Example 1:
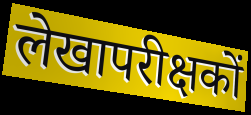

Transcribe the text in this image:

लेखापरीक्षकों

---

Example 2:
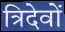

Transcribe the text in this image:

त्रिदेवों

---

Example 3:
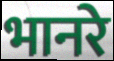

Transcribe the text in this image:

भानरे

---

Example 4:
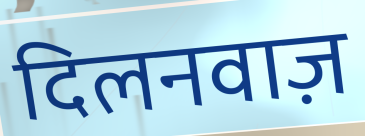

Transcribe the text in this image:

दिलनवाज़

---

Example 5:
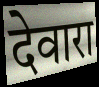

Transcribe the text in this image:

देवारा